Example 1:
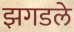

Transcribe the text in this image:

झगडले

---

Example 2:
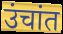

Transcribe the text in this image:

उंचांत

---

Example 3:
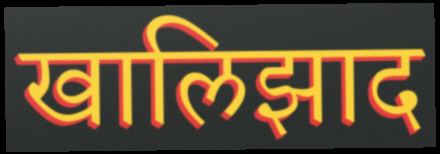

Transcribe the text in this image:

खालिझाद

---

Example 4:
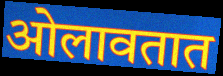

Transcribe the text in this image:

ओलावतात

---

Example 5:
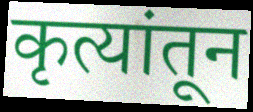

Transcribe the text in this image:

कृत्यांतून